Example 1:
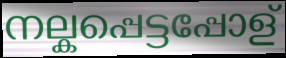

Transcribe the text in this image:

നല്കപ്പെട്ടപ്പോള്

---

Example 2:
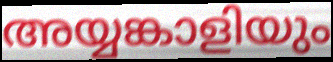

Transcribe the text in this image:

അയ്യങ്കാളിയും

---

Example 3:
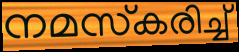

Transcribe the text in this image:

നമസ്‌കരിച്ച്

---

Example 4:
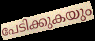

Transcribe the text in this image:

പേടിക്കുകയും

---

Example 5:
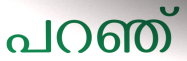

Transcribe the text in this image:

പറഞ്